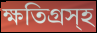
ক্ষতিগ্রস্হ